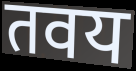
तवय